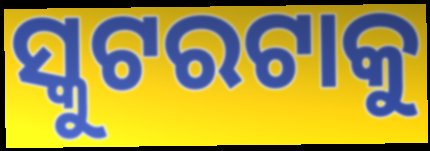
ସ୍କୁଟରଟାକୁ